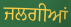
ਜਲਗੀਆਂ